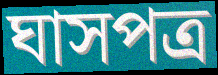
ঘাসপত্র